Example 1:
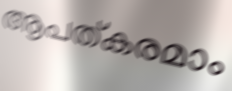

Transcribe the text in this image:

ആപത്കരമാം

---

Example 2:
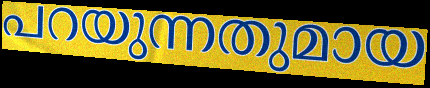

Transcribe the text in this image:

പറയുന്നതുമായ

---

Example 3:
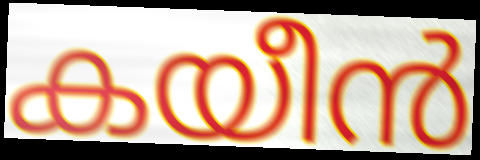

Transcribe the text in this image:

കയീൻ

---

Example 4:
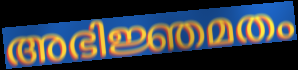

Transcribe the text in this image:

അഭിജ്ഞമതം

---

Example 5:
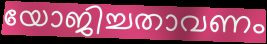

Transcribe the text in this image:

യോജിച്ചതാവണം